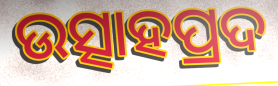
ଉତ୍ସାହପ୍ରଦ